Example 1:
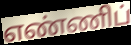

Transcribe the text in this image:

எண்ணிப்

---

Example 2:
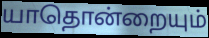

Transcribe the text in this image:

யாதொன்றையும்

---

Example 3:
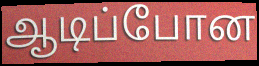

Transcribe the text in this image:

ஆடிப்போன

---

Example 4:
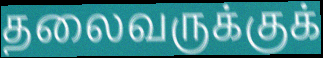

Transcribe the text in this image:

தலைவருக்குக்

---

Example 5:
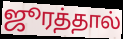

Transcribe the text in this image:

ஜூரத்தால்